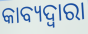
କାବ୍ୟଦ୍ୱାରା